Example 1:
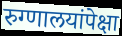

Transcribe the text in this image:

रुग्णालयांपेक्षा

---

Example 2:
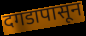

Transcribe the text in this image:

दगडापासून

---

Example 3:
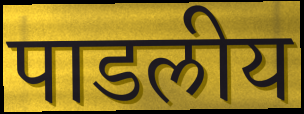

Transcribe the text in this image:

पाडलीय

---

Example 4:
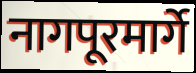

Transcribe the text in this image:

नागपूरमार्गे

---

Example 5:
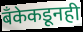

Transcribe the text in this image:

बँकेकडूनही